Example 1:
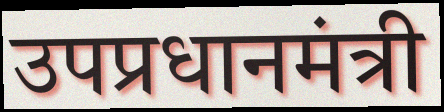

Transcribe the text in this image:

उपप्रधानमंत्री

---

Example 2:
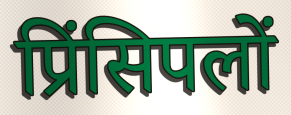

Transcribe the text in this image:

प्रिंसिपलों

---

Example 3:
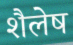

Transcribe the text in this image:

शैलेष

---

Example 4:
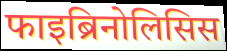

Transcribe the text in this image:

फाइब्रिनोलिसिस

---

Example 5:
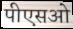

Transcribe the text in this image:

पीएसओ